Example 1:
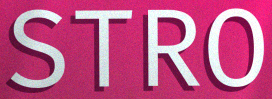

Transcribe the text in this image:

STRO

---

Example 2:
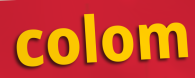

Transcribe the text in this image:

colom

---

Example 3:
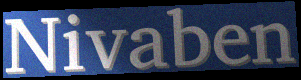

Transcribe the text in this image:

Nivaben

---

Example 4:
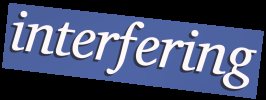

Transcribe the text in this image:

interfering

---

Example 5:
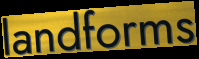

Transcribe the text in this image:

landforms